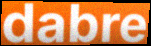
dabre